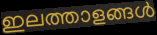
ഇലത്താളങ്ങൾ